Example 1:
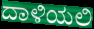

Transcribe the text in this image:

ದಾಳಿಯಲಿ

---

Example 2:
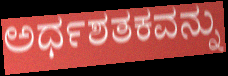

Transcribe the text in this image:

ಅರ್ಧಶತಕವನ್ನು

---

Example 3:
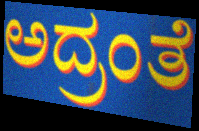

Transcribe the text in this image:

ಅದ್ರಂತೆ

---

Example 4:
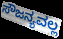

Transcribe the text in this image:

ಸೌಜನ್ಯವಲ್ಲ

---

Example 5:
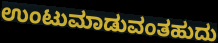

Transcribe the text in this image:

ಉಂಟುಮಾಡುವಂತಹುದು